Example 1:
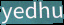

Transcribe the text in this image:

yedhu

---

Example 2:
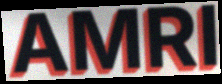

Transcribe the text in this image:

AMRI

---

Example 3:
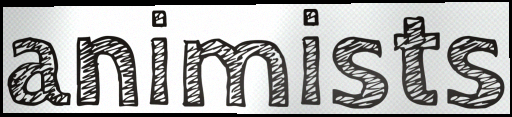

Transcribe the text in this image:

animists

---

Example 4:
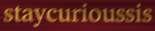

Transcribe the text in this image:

staycurioussis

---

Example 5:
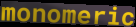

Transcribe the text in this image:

monomeric